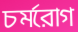
চর্মরোগ